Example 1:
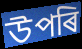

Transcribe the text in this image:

উপৰি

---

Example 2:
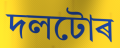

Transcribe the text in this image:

দলটোৰ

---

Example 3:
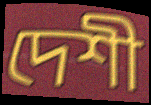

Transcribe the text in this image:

দেশী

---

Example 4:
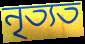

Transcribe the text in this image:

নৃত্যত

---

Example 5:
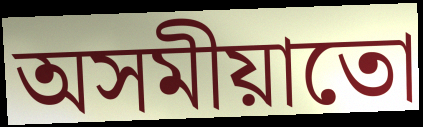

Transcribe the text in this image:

অসমীয়াতো